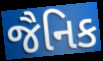
જૈનિક